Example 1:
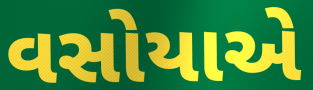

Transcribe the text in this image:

વસોયાએ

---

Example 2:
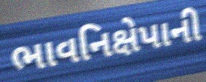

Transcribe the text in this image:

ભાવનિક્ષેપાની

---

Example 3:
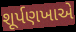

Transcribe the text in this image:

શૂર્પણખાએ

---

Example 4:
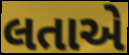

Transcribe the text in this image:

લતાએ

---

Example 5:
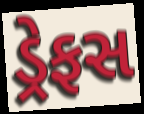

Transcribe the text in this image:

ડ્રેફસ